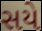
સયે